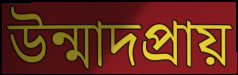
উন্মাদপ্রায়